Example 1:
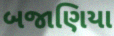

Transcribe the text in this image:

બજાણિયા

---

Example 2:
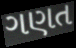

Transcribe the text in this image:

ગણત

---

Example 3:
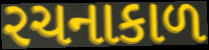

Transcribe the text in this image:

રચનાકાળ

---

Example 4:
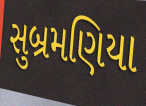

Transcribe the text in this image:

સુબ્રમણિયા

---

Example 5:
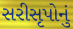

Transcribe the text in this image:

સરીસૃપોનું